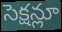
సెక్షన్లూ